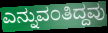
ಎನ್ನುವಂತಿದ್ದವು